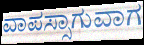
ವಾಪಸ್ಸಾಗುವಾಗ